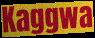
Kaggwa